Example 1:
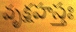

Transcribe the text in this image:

వృక్షహస్తః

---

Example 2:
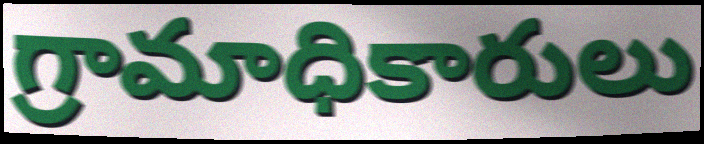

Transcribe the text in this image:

గ్రామాధికారులు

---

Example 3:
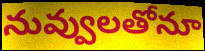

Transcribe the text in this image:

నువ్వులతోనూ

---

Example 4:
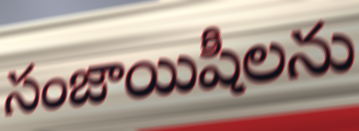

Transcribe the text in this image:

సంజాయిషీలను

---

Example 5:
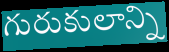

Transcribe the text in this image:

గురుకులాన్ని